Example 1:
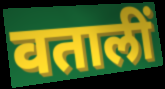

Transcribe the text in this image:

वतालीं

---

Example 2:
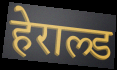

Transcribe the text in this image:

हेराल्ड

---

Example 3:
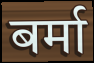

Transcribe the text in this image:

बर्मा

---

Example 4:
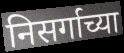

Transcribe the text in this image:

निसर्गाच्या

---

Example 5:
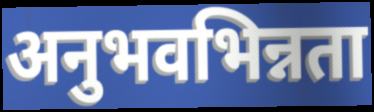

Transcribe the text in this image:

अनुभवभिन्नता